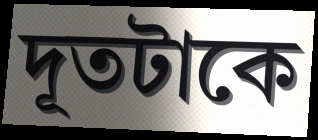
দূতটাকে